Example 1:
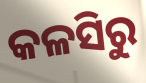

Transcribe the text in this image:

କଳସିରୁ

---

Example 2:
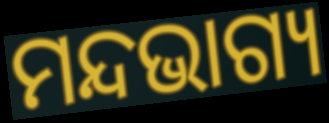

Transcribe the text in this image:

ମନ୍ଦଭାଗ୍ୟ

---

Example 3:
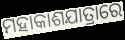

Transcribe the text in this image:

ମହାକାଶଯାତ୍ରାରେ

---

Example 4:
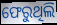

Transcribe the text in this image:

ଫେରୁଥିଲି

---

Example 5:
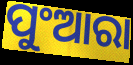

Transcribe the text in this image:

ପୁଂଆରା